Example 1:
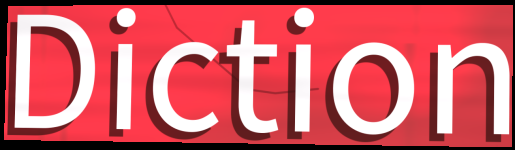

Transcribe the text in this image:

Diction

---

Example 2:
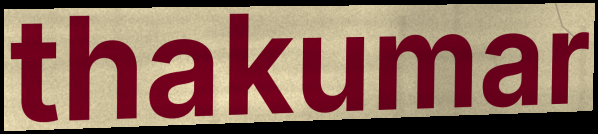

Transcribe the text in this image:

thakumar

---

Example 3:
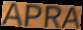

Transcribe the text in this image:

APRA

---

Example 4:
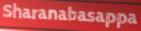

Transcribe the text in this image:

Sharanabasappa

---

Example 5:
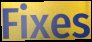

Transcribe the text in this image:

Fixes